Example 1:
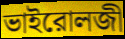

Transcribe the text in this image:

ভাইরোলজী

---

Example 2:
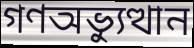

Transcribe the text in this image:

গণঅভ্যুত্থান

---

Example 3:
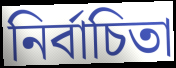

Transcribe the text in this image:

নির্বাচিতা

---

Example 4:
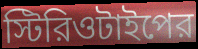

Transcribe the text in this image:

স্টিরিওটাইপের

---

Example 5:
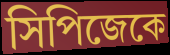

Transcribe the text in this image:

সিপিজেকে